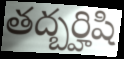
తద్బర్హిషి